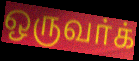
ஒருவர்க்